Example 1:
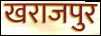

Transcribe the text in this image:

खराजपुर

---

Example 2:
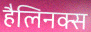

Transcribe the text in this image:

हैलिनक्स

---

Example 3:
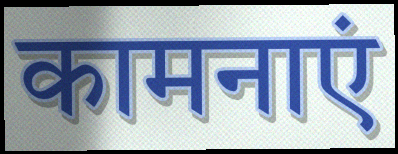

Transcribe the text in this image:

कामनाएं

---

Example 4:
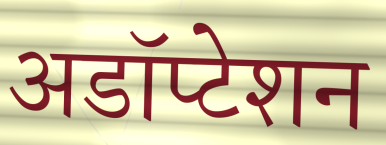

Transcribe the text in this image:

अडॉप्टेशन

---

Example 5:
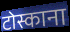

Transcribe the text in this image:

टोस्काना